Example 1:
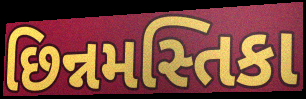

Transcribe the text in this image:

છિન્નમસ્તિકા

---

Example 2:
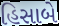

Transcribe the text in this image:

હિસાબે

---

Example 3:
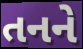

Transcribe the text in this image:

તનને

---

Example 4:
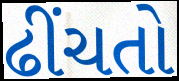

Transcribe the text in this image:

ઢીંચતો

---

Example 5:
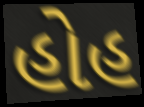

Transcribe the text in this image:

હોહ